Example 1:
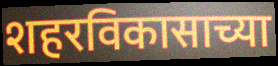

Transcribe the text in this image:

शहरविकासाच्या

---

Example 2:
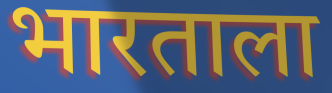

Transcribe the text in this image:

भारताला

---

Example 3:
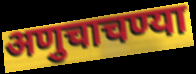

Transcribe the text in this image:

अणुचाचण्या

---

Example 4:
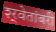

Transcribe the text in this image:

श्र्वेतांबरी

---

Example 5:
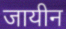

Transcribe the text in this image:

जायीन